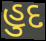
હુદ